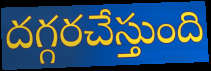
దగ్గరచేస్తుంది